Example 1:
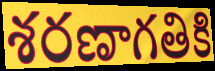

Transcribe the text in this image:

శరణాగతికి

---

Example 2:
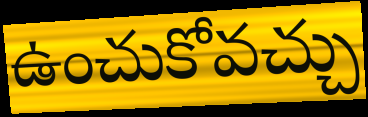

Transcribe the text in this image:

ఉంచుకోవచ్చు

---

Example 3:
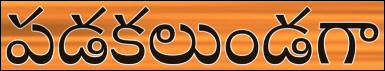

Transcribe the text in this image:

పడకలుండగా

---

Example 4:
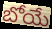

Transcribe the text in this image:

బోయే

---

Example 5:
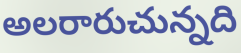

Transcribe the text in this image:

అలరారుచున్నది